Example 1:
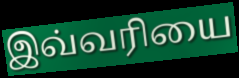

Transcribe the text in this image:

இவ்வரியை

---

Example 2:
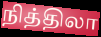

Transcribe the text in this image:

நித்திலா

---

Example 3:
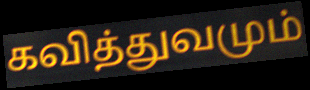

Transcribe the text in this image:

கவித்துவமும்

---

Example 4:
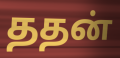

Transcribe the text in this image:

ததன்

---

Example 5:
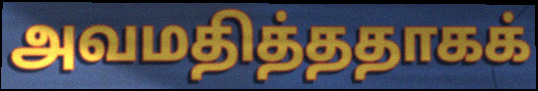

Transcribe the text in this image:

அவமதித்ததாகக்